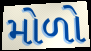
મોળો